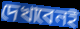
দেখাবেনই